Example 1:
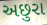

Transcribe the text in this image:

અછુરા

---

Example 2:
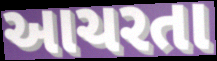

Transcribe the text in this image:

આચરતા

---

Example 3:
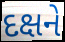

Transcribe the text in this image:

દક્ષને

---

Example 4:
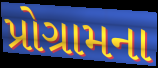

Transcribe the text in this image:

પ્રોગ્રામના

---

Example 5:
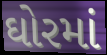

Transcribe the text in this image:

ઘોરમાં